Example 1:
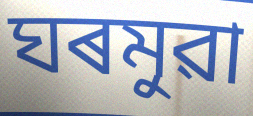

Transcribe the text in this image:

ঘৰমুৱা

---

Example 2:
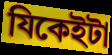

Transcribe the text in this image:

যিকেইটা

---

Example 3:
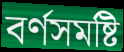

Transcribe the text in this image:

বৰ্ণসমষ্টি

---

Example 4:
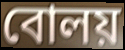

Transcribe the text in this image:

বোলয়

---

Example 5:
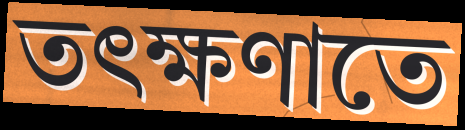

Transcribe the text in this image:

তৎক্ষণাতে